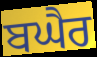
ਬਘੈਰ